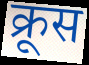
क्रूस